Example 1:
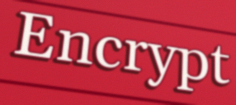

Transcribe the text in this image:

Encrypt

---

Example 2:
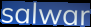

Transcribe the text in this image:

salwar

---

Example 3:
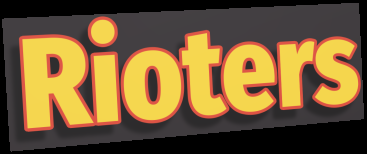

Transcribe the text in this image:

Rioters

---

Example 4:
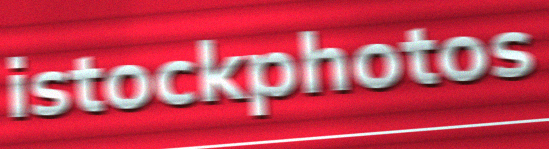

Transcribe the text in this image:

istockphotos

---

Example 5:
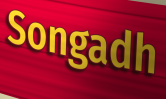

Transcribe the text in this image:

Songadh